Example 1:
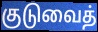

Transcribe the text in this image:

குடுவைத்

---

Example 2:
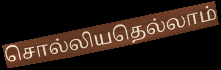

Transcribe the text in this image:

சொல்லியதெல்லாம்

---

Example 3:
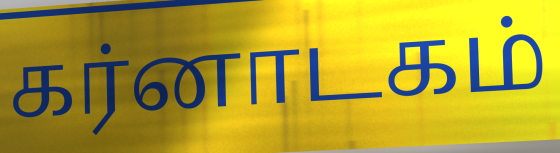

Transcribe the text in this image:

கர்னாடகம்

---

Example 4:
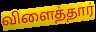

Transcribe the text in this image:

விளைத்தார்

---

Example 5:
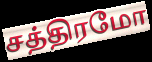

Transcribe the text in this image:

சத்திரமோ